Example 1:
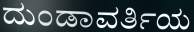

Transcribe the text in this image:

ದುಂಡಾವರ್ತಿಯ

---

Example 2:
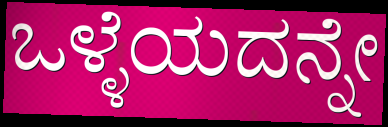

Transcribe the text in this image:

ಒಳ್ಳೆಯದನ್ನೇ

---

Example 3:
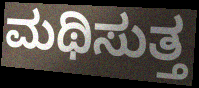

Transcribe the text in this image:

ಮಥಿಸುತ್ತ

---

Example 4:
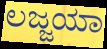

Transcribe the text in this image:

ಲಜ್ಜಯಾ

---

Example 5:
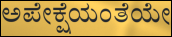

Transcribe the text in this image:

ಅಪೇಕ್ಷೆಯಂತೆಯೇ